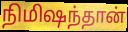
நிமிஷந்தான்